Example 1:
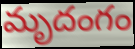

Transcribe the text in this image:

మృదంగం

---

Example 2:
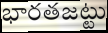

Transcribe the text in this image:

భారతజట్టు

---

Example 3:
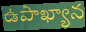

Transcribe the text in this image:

ఉపాఖ్యాన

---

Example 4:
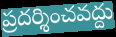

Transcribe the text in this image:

ప్రదర్శించవద్దు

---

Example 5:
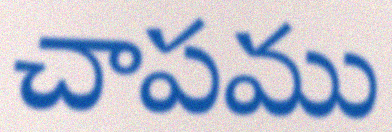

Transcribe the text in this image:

చాపము